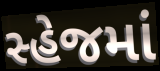
સ્હેજમાં